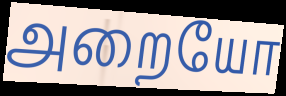
அறையோ